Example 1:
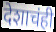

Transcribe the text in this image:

देशाचंही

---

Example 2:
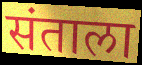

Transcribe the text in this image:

संताला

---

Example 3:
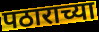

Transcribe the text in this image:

पठाराच्या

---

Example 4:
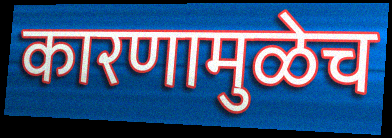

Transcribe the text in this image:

कारणामुळेच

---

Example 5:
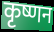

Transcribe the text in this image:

कृष्णन